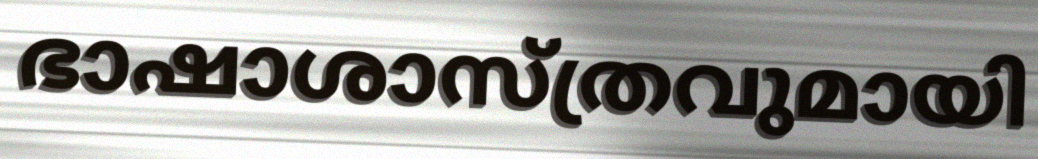
ഭാഷാശാസ്ത്രവുമായി